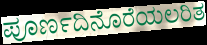
ಪೂರ್ಣದಿನೊರೆಯಲರಿತ